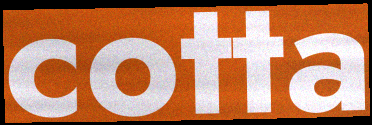
cotta